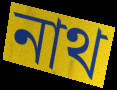
নাথ